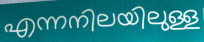
എന്നനിലയിലുള്ള